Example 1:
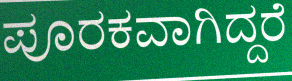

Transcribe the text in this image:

ಪೂರಕವಾಗಿದ್ದರೆ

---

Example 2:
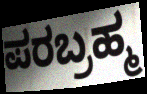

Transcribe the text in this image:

ಪರಬ್ರಹ್ಮ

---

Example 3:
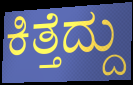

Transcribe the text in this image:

ಕಿತ್ತೆದ್ದು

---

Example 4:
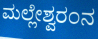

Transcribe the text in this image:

ಮಲ್ಲೇಶ್ವರಂನ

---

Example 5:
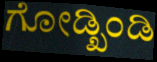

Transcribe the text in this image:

ಗೋಡ್ಖಿಂಡಿ